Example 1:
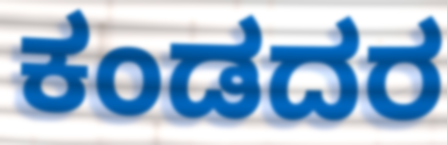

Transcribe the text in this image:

ಕಂಡದರ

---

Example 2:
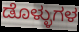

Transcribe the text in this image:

ಡೊಳ್ಳುಗಳ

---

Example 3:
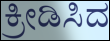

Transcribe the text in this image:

ಕ್ರೀಡಿಸಿದ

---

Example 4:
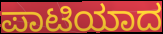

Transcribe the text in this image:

ಪಾಟಿಯಾದ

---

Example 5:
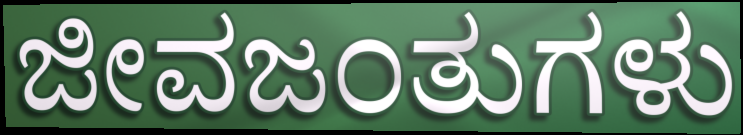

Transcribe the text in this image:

ಜೀವಜಂತುಗಳು